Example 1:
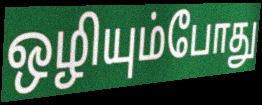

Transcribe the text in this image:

ஒழியும்போது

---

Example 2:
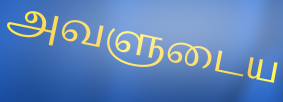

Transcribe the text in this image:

அவளுடைய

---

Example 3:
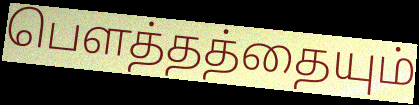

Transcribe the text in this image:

பெளத்தத்தையும்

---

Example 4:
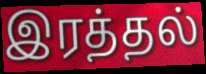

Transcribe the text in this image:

இரத்தல்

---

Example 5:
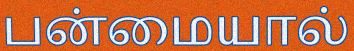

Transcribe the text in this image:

பன்மையால்